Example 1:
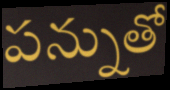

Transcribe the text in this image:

పన్నుతో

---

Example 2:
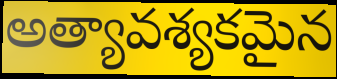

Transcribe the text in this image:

అత్యావశ్యకమైన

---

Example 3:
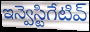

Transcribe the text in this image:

ఇన్వెస్టిగేటివ్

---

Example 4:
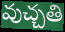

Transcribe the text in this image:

వుచ్చతి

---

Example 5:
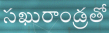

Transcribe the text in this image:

సఖురాండ్రతో